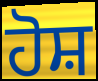
ਹੋਸ਼